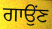
ਗਾਉਂਣ